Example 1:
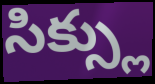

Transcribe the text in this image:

సిక్స్లు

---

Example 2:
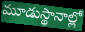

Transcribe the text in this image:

మూడుస్థానాల్లో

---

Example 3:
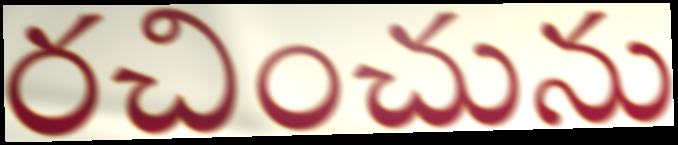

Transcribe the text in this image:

రచించును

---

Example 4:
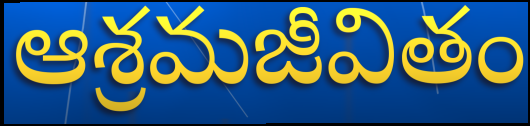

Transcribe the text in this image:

ఆశ్రమజీవితం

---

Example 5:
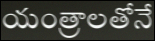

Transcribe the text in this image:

యంత్రాలతోనే